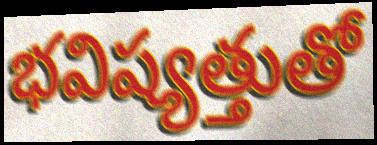
భవిష్యత్తుతో